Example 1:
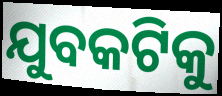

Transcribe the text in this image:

ଯୁବକଟିକୁ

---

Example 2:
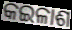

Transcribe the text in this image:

କଇଳାଶ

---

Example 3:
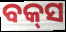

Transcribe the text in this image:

ବକ୍‍ସ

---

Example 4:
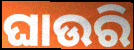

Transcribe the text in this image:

ଘାଉରି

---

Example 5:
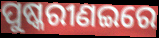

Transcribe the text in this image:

ପୁଷ୍କରୀଣଇରେ